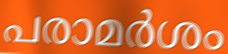
പരാമർശം